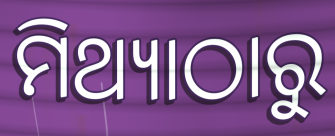
ମିଥ୍ୟାଠାରୁ